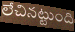
లేచినట్టుంది